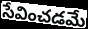
సేవించడమే